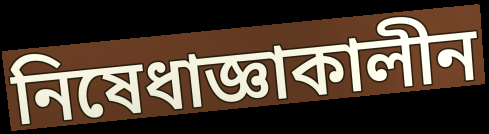
নিষেধাজ্ঞাকালীন